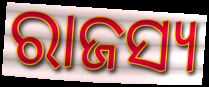
ରାଜସ୍ୟ